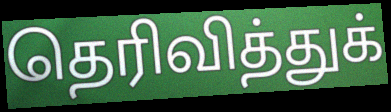
தெரிவித்துக்